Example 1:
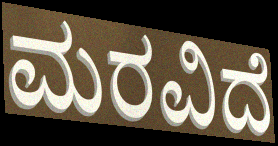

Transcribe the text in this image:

ಮರವಿದೆ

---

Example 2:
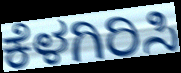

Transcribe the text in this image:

ಕೆಳಗಿರಿಸಿ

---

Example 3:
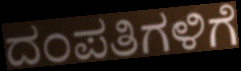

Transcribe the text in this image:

ದಂಪತಿಗಳಿಗೆ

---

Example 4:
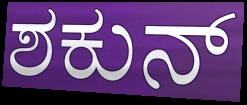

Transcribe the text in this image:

ಶಕುನ್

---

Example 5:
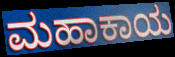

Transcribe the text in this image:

ಮಹಾಕಾಯ